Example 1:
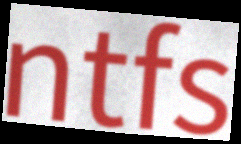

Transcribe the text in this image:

ntfs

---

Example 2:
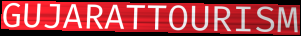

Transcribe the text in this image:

GUJARATTOURISM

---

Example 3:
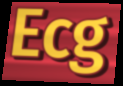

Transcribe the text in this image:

Ecg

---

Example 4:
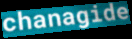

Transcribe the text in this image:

chanagide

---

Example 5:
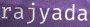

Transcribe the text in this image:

rajyada